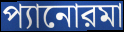
প্যানোরমা